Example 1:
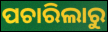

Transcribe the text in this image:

ପଚାରିଲାରୁ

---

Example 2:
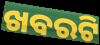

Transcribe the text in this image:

ଖବରଟି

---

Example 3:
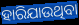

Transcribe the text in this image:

ହାରିଯାଉଥିବା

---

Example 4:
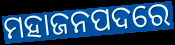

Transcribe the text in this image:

ମହାଜନପଦରେ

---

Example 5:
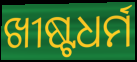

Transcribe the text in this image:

ଖୀଷ୍ଟଧର୍ମ